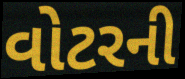
વોટરની